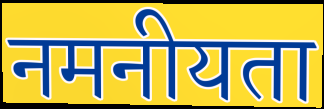
नमनीयता